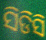
ସିଡିସି